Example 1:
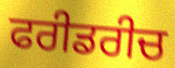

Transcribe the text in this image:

ਫਰੀਡਰੀਚ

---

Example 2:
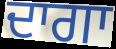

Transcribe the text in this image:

ਦਾਗਾ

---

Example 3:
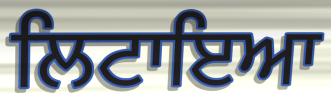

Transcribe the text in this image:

ਲਿਟਾਇਆ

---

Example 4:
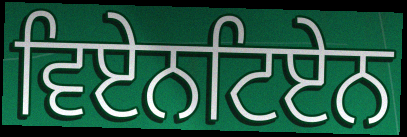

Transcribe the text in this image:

ਵਿਏਨਟਿਏਨ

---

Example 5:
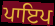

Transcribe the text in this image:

ਪਾਇਪ